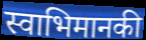
स्वाभिमानकी